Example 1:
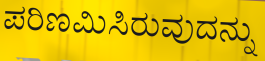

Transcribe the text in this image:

ಪರಿಣಮಿಸಿರುವುದನ್ನು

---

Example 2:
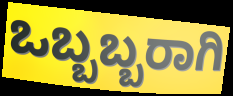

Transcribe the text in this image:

ಒಬ್ಬಬ್ಬರಾಗಿ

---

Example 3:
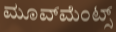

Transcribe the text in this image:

ಮೂವ್‌ಮೆಂಟ್ಸ್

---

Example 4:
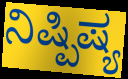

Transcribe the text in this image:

ನಿಷ್ಪಿಷ್ಯ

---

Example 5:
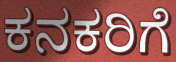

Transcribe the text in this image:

ಕನಕರಿಗೆ